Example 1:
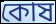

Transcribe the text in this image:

কোষ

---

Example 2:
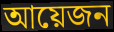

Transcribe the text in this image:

আয়েজন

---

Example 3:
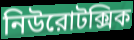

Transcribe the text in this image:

নিউরোটক্সিক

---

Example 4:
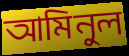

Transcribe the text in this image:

আমিনুল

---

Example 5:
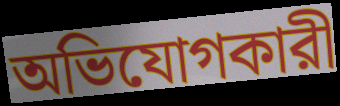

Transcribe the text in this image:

অভিযোগকারী